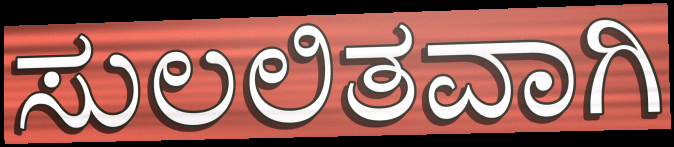
ಸುಲಲಿತವಾಗಿ